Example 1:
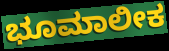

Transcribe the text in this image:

ಭೂಮಾಲೀಕ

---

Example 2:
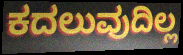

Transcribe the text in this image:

ಕದಲುವುದಿಲ್ಲ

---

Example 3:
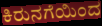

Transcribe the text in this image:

ಕಿರುನಗೆಯಿಂದ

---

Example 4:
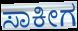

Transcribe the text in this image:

ಸಾಕೀಗ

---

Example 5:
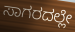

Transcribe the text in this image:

ಸಾಗರದಲ್ಲೇ